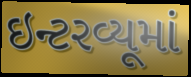
ઇન્ટરવ્યૂમાં